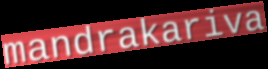
mandrakariva